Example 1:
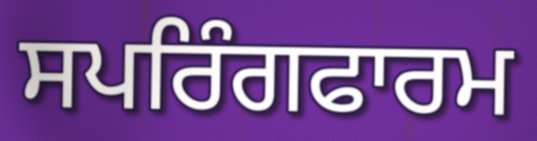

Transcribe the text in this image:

ਸਪਰਿੰਗਫਾਰਮ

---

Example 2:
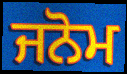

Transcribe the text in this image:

ਜਨੋਮ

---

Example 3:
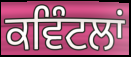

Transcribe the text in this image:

ਕਵਿੰਟਲਾਂ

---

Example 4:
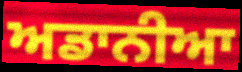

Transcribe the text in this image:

ਅਡਾਨੀਆ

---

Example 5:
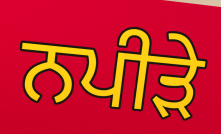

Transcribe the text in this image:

ਨਪੀੜੇ